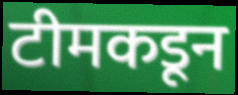
टीमकडून